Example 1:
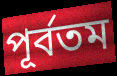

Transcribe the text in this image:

পূর্বতম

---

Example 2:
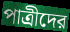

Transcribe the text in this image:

পাত্রীদের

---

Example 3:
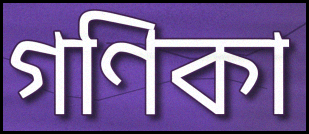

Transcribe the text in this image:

গণিকা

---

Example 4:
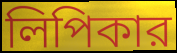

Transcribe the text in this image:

লিপিকার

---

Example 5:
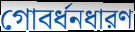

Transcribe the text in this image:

গোবর্ধনধারণ